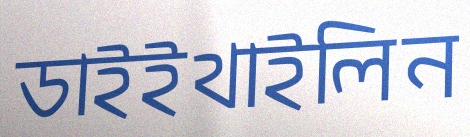
ডাইইথাইলিন